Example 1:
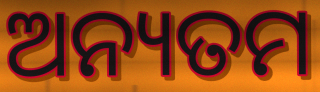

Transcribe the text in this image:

ଅନ୍ୟତମ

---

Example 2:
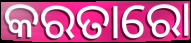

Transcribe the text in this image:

କରତାରୋ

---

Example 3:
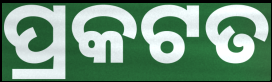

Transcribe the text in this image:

ପ୍ରକଟତ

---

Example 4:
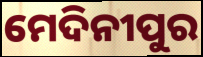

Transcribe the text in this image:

ମେଦିନୀପୁର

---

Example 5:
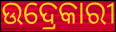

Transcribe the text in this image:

ଉଦ୍ରେକାରୀ